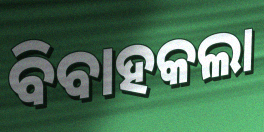
ବିବାହକଲା